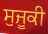
ਸੁਜੂਕੀ